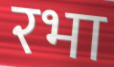
रभा